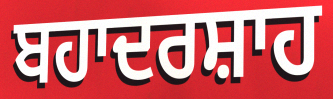
ਬਹਾਦਰਸ਼ਾਹ